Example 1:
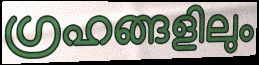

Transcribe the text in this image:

ഗ്രഹങ്ങളിലും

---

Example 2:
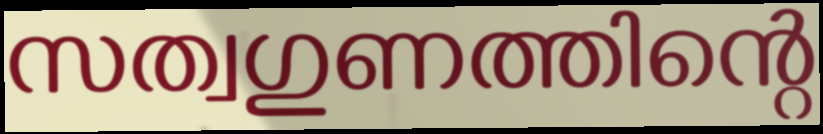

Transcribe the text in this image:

സത്വഗുണത്തിന്റെ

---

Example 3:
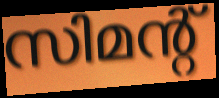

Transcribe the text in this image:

സിമന്റ്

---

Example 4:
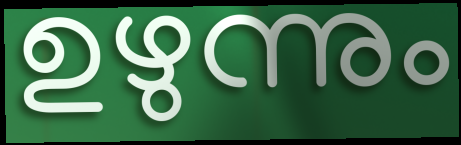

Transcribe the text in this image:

ഉഴുന്നും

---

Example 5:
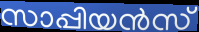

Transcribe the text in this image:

സാപ്പിയൻസ്